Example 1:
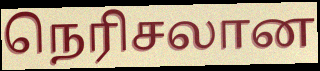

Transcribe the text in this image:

நெரிசலான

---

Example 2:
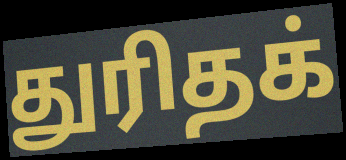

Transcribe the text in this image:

துரிதக்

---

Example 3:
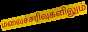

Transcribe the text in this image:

மலைச்சரிவுகளிலும்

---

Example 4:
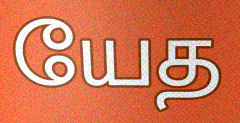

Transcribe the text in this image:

யேத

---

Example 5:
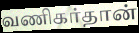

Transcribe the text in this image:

வணிகர்தான்